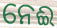
ନେଈ